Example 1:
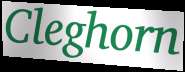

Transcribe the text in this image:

Cleghorn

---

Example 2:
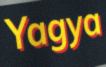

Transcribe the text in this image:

Yagya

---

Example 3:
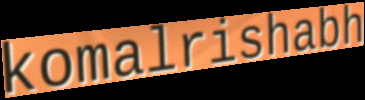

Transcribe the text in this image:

komalrishabh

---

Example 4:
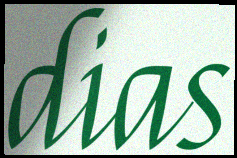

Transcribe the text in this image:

dias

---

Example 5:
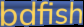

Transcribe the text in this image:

bdfish